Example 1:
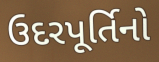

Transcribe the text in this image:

ઉદરપૂર્તિનો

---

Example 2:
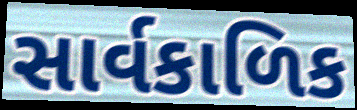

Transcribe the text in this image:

સાર્વકાળિક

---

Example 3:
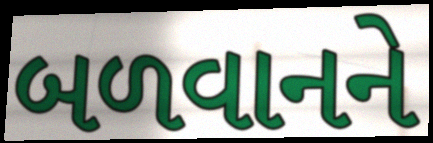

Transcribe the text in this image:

બળવાનને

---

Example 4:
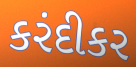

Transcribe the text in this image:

કરંદીકર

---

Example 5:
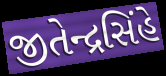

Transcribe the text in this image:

જીતેન્દ્રસિંહે